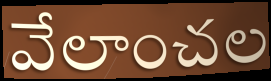
వేలాంచల